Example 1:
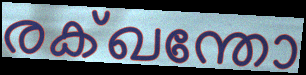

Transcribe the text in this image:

രക്ഖന്തോ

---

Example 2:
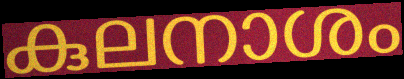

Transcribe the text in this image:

കുലനാശം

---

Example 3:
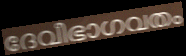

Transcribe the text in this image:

ദേവീഭാഗവതം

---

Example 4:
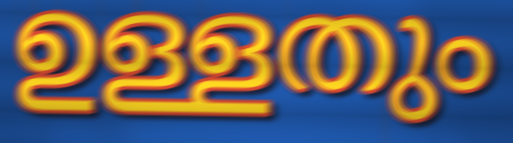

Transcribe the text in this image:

ഉള്ളതും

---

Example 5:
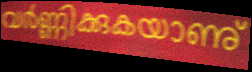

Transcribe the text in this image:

വർണ്ണിക്കുകയാണു്